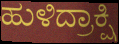
ಹುಳಿದ್ರಾಕ್ಷಿ